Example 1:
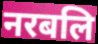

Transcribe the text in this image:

नरबलि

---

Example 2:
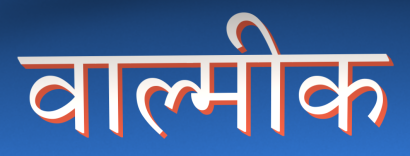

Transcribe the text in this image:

वाल्मीक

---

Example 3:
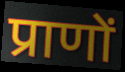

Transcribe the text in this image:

प्राणों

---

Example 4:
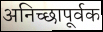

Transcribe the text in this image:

अनिच्छापूर्वक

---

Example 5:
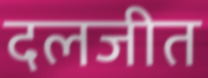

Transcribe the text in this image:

दलजीत